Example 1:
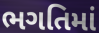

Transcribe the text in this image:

ભગતિમાં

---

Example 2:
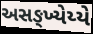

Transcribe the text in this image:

અસઙ્ખ્યેય્યે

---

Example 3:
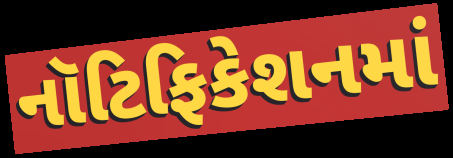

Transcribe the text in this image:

નૉટિફિકેશનમાં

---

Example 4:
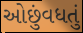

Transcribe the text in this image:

ઓછુંવધતું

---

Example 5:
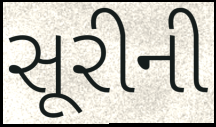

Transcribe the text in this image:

સૂરીની